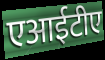
एआईटीए